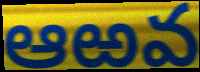
ఆఱవ